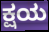
ಕ್ಷಯ